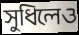
সুধিলেও